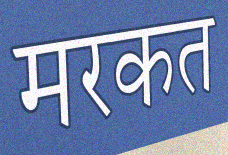
मरकत